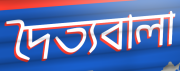
দৈত্যবালা